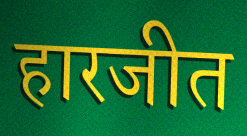
हारजीत